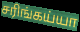
சரிங்கய்யா